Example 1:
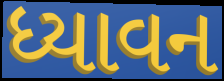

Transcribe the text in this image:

ધ્યાવન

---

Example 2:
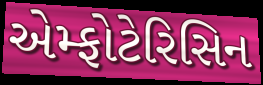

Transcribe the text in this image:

એમ્ફોટેરિસિન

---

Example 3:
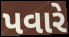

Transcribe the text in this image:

પવારે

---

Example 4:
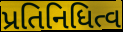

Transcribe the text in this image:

પ્રતિનિધિત્વ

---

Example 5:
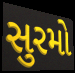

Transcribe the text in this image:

સુરમો